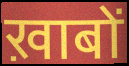
ख़ाबों